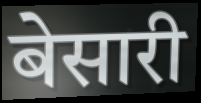
बेसारी